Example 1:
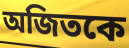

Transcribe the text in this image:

অজিতকে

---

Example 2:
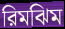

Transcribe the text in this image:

রিমঝিম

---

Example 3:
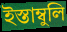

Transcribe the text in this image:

ইস্তাম্বুলি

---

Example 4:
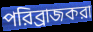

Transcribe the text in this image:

পরিব্রাজকরা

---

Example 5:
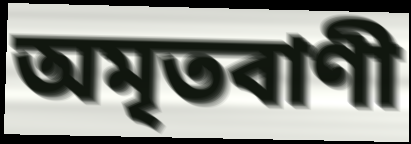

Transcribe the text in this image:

অমৃতবাণী